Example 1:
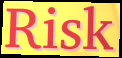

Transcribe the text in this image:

Risk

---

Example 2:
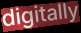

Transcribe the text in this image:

digitally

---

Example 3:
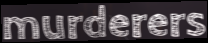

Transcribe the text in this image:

murderers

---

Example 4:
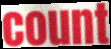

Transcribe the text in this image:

count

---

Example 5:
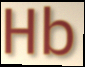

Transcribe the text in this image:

Hb